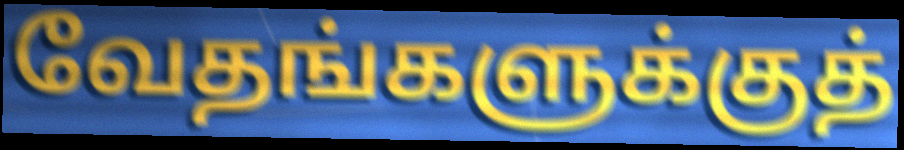
வேதங்களுக்குத்